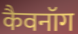
कैवनॉग